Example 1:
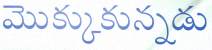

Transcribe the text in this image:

మొక్కుకున్నడు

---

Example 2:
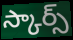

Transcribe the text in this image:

స్కార్స్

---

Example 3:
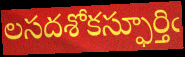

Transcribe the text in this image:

లసదశోకస్ఫూర్తిఁ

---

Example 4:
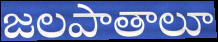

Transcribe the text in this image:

జలపాతాలూ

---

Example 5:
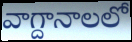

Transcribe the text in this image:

వాగ్దానాలలో